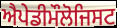
ਐਪੇਡੀਮੌਲੋਜਿਸਟ